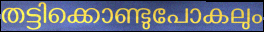
തട്ടിക്കൊണ്ടുപോകലും